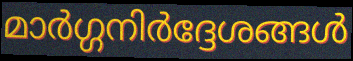
മാർഗ്ഗനിർദ്ദേശങ്ങൾ